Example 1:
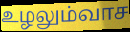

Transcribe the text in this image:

உழலும்வாச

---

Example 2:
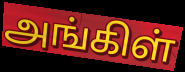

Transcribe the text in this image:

அங்கிள்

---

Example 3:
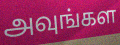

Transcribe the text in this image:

அவுங்கள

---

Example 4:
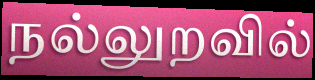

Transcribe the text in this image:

நல்லுறவில்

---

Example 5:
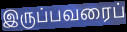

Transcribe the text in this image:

இருப்பவரைப்